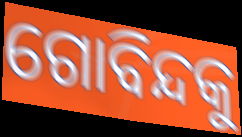
ଗୋବିନ୍ଦକୁ